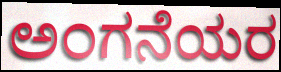
ಅಂಗನೆಯರ